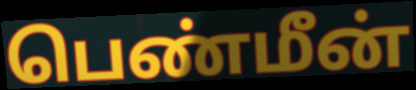
பெண்மீன்